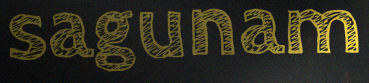
sagunam